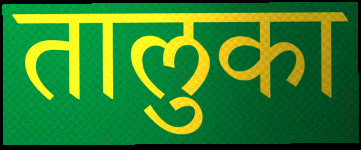
तालुका